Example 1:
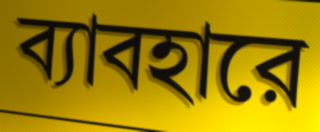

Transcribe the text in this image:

ব্যাবহারে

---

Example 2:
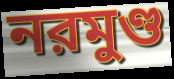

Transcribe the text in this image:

নরমুণ্ড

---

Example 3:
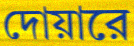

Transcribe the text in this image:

দোয়ারে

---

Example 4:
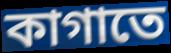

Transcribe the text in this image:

কাগাতে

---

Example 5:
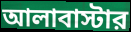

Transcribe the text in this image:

আলাবাস্টার